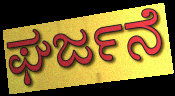
ಘರ್ಜನೆ